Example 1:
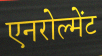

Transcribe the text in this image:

एनरोल्मेंट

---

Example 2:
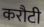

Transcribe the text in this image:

करौटी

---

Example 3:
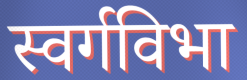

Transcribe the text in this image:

स्वर्गविभा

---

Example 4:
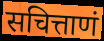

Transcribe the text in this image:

सचित्ताणं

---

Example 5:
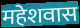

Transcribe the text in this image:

महेशवास